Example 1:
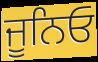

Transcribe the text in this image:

ਜੂਨਿਓ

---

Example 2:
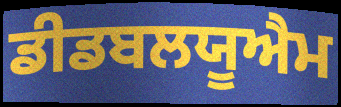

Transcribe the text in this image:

ਡੀਡਬਲਯੂਐਮ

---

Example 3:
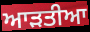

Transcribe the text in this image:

ਆੜਤੀਆ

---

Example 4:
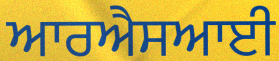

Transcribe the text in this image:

ਆਰਐਸਆਈ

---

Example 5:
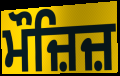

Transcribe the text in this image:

ਮੌਜ਼ਿਜ਼